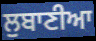
ਲੁਬਾਣੀਆ